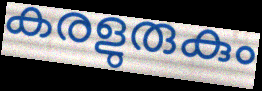
കരളുരുകും